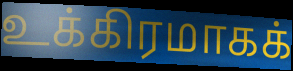
உக்கிரமாகக்